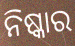
ନିଷ୍କାର